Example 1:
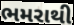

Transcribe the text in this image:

ભમરાથી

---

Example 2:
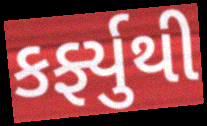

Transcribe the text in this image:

કર્ફ્યુથી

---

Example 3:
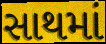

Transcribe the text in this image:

સાથમાં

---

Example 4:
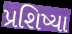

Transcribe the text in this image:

પ્રશિષ્યા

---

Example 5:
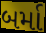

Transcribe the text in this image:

બર્મા